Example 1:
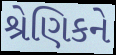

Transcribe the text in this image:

શ્રેણિકને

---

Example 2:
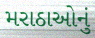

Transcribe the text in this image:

મરાઠાઓનું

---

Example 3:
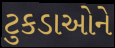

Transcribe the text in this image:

ટુકડાઓને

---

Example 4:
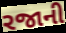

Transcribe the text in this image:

રજાની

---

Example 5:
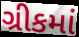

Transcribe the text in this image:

ગ્રીકમાં